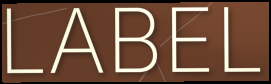
LABEL